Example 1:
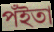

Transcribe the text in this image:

পঁইতা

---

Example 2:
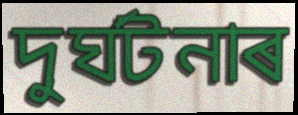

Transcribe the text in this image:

দুৰ্ঘটনাৰ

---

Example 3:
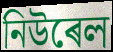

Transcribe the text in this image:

নিউৰেল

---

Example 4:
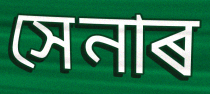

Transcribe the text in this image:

সেনাৰ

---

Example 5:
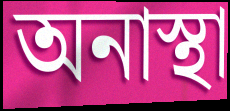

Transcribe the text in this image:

অনাস্থা